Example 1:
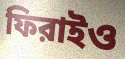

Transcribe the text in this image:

ফিরাইও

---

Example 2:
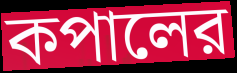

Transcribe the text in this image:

কপালের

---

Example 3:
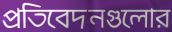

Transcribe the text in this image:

প্রতিবেদনগুলোর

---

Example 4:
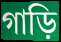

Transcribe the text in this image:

গাড়ি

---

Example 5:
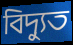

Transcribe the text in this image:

বিদ্যুত